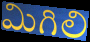
మిగిలి